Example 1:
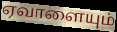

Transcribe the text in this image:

ஏவாளையும்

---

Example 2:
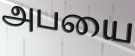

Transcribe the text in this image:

அபயை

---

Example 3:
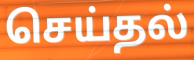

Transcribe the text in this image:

செய்தல்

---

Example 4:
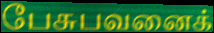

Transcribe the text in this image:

பேசுபவனைக்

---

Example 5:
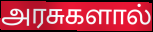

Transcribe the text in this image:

அரசுகளால்